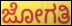
ಜೋಗತಿ